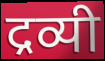
द्रव्यी